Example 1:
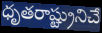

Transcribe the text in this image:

ధృతరాష్ట్రునిచే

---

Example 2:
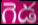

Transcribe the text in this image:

గెడ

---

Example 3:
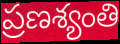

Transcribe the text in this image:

ప్రణశ్యంతి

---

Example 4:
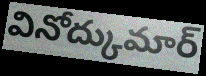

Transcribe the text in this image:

వినోద్కుమార్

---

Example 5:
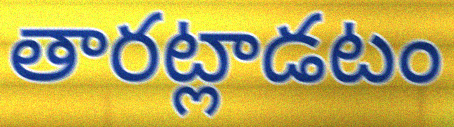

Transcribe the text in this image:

తారట్లాడటం